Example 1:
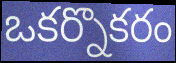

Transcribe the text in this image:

ఒకర్నొకరం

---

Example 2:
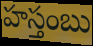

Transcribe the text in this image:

హస్తంబు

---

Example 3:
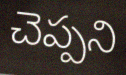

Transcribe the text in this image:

చెప్పని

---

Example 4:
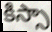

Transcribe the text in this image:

కిస్సా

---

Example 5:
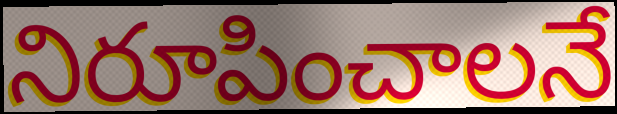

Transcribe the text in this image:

నిరూపించాలనే